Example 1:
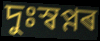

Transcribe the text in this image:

দুঃস্বপ্নৰ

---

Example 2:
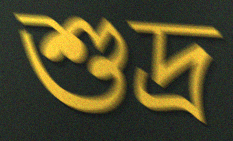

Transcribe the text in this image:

শুদ্ৰ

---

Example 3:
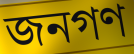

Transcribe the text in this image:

জনগণ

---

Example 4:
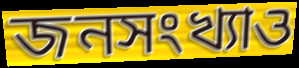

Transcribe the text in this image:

জনসংখ্যাও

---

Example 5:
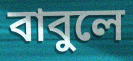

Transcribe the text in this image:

বাবুলে